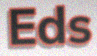
Eds